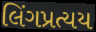
લિંગપ્રત્યય